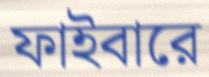
ফাইবারে